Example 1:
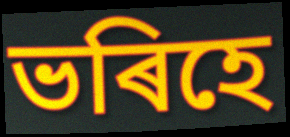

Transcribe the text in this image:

ভৰিহে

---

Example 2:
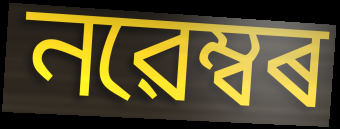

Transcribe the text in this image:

নৱেম্বৰ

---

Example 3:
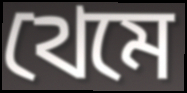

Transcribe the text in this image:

থেমে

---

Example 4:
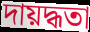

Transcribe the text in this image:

দায়দ্ধতা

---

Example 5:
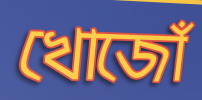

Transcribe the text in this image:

খোজোঁ